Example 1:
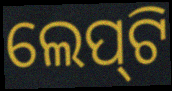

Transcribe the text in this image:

ଲେପ୍‍ଟି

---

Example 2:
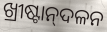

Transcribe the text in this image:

ଖ୍ରୀଷ୍ଟାନ୍‌ଦଳନ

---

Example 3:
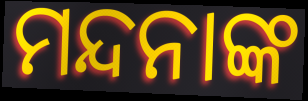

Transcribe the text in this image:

ମନ୍ଦନାଙ୍କ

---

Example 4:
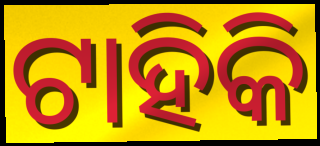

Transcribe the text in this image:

ଟାହିକି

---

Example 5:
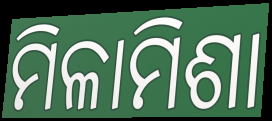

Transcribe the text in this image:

ମିଳାମିଶା